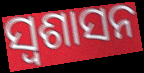
ସ୍ବଶାସନ